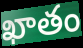
ఖాతం